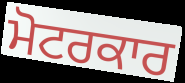
ਮੋਟਰਕਾਰ